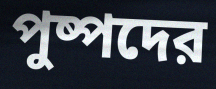
পুষ্পদের